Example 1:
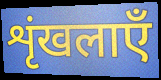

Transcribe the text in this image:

शृंखलाएँ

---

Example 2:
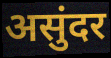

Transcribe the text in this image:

असुंदर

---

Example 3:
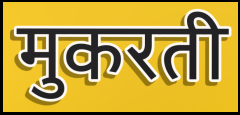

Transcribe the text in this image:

मुकरती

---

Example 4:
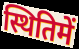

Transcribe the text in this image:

स्थितिमें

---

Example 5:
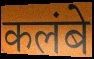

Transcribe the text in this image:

कलंबे